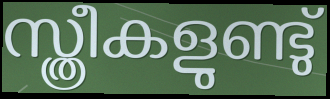
സ്ത്രീകളുണ്ടു്